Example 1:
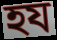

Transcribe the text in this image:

হয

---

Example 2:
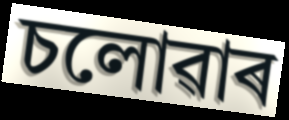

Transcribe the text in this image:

চলোৱাৰ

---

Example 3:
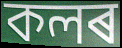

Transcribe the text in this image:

কলৰ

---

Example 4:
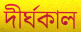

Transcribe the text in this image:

দীৰ্ঘকাল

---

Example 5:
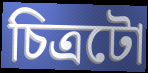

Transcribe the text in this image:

চিত্ৰটো